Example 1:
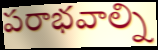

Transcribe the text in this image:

పరాభవాల్ని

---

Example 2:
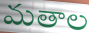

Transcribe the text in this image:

మతాల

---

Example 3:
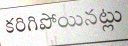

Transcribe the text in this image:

కరిగిపోయినట్లు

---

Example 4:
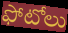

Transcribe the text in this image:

ఫోటోలు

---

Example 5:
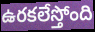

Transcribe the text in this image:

ఉరకలేస్తోంది